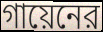
গায়েনের